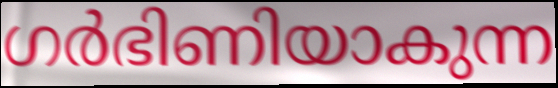
ഗർഭിണിയാകുന്ന